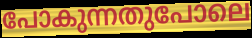
പോകുന്നതുപോലെ